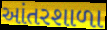
આંતરશાળા